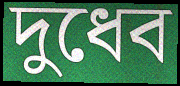
দুধেব